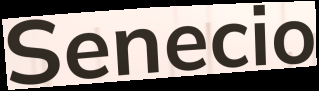
Senecio